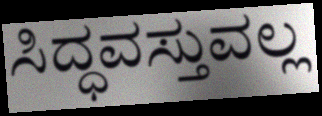
ಸಿದ್ಧವಸ್ತುವಲ್ಲ